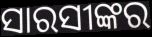
ସାରସୀଙ୍କର